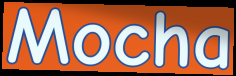
Mocha